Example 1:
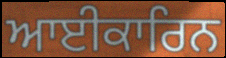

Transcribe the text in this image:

ਆਈਕਾਰਿਨ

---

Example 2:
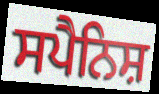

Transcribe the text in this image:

ਸਪੈਨਿਸ਼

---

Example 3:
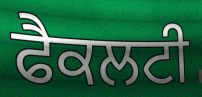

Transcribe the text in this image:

ਫੈਕਲਟੀ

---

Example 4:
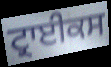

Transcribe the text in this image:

ਟ੍ਰਾਈਕਸ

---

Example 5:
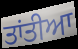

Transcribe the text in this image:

ਤਾਂਤੀਆ